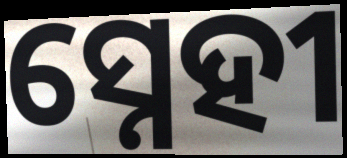
ସ୍ନେହୀ